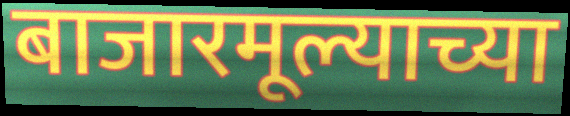
बाजारमूल्याच्या